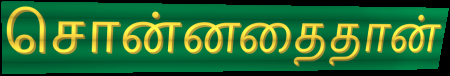
சொன்னதைதான்